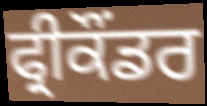
ਫ੍ਰੀਕੌਂਡਰ